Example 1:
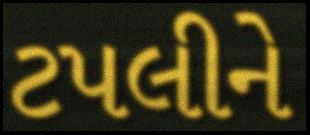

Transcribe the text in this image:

ટપલીને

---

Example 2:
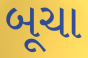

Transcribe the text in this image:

બૂચા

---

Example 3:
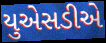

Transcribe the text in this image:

યુએસડીએ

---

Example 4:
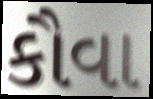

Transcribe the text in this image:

કૌવા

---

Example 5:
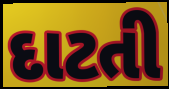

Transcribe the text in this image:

દાટતી